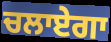
ਚਲਾਏਗਾ